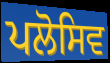
ਪਲੋਸਿਵ